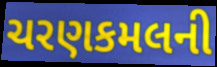
ચરણકમલની